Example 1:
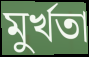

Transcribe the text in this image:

মুর্খতা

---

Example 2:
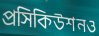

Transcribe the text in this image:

প্রসিকিউশনও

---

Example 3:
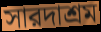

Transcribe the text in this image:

সারদাশ্রম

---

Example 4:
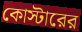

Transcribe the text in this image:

কোস্টারের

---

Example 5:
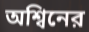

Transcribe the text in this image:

অশ্বিনের